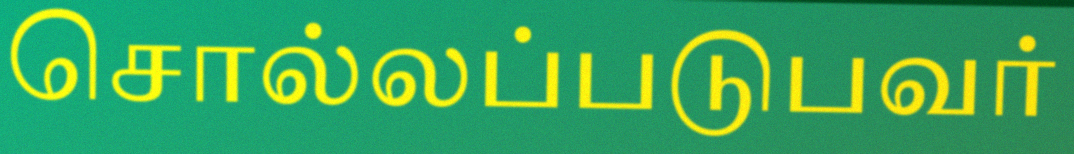
சொல்லப்படுபவர்